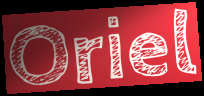
Oriel